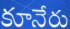
కూనేరు